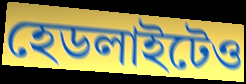
হেডলাইটেও